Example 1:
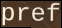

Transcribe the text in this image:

pref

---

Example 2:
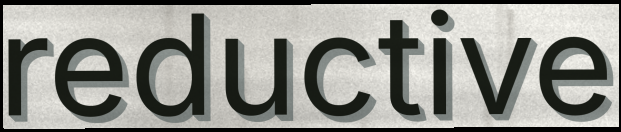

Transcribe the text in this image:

reductive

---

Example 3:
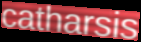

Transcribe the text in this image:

catharsis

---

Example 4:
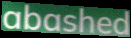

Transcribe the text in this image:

abashed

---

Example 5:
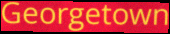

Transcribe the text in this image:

Georgetown